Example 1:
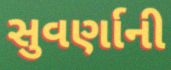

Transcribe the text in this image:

સુવર્ણાની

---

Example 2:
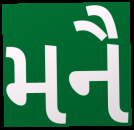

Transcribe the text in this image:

મનૈ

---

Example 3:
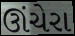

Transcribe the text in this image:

ઊંચેરા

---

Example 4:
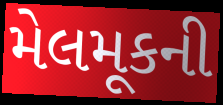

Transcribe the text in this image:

મેલમૂકની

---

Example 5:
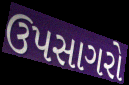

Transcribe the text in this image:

ઉપસાગરો